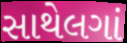
સાથેલગાં